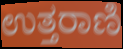
ಉತ್ತರಾಣಿ